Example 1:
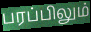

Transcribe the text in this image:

பரப்பிலும்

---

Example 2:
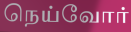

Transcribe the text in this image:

நெய்வோர்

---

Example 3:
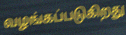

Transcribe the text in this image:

வழங்கப்படுகிறது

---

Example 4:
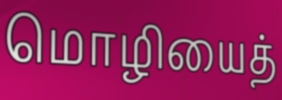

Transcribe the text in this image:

மொழியைத்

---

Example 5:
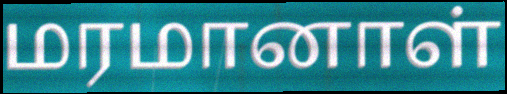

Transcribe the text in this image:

மரமானாள்